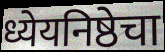
ध्येयनिष्ठेचा